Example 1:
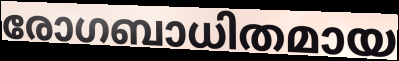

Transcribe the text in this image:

രോഗബാധിതമായ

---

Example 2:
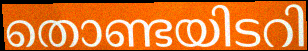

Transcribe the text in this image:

തൊണ്ടയിടറി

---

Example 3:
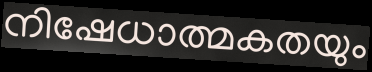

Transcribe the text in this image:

നിഷേധാത്മകതയും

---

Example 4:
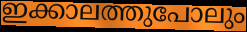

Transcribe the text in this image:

ഇക്കാലത്തുപോലും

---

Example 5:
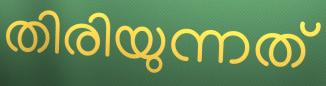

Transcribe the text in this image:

തിരിയുന്നത്